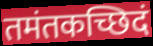
तमंतकच्छिदं